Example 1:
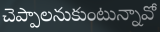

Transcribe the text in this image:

చెప్పాలనుకుంటున్నావో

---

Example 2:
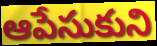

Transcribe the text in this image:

ఆపేసుకుని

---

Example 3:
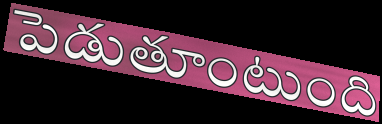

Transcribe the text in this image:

పెడుతూంటుంది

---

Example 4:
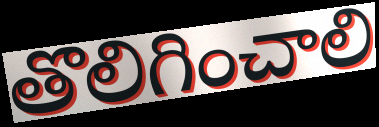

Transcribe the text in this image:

తొలిగించాలి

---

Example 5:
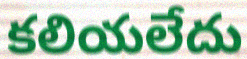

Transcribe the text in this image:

కలియలేదు